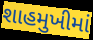
શાહમુખીમાં